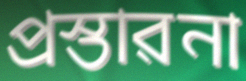
প্ৰস্তাৱনা